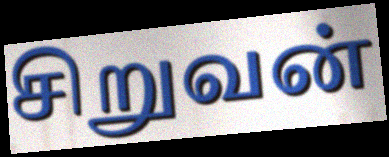
சிறுவன்